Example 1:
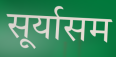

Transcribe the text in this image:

सूर्यासम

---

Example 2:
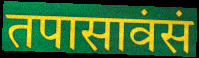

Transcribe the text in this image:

तपासावंसं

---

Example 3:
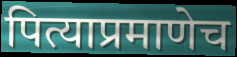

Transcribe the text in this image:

पित्याप्रमाणेच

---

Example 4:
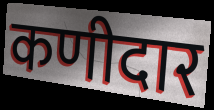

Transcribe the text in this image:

कणीदार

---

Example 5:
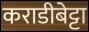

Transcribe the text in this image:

कराडीबेट्टा